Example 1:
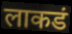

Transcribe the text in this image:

लाकडं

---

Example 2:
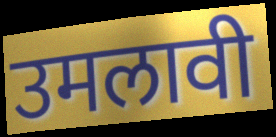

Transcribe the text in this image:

उमलावी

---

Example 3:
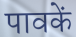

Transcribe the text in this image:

पावकें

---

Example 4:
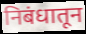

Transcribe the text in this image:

निबंधातून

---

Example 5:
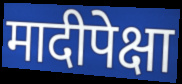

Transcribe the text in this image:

मादीपेक्षा